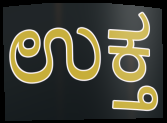
ಉಕ್ತ